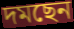
দমছেন